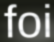
foi